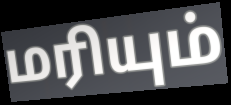
மரியும்